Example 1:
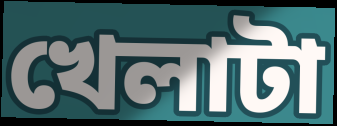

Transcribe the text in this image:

খেলাটা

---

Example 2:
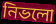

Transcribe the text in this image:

নিভলো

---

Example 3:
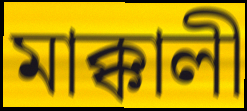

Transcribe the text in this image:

মাক্কালী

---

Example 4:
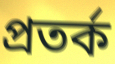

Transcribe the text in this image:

প্রতর্ক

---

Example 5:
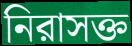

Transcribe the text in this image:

নিরাসক্ত